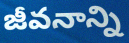
జీవనాన్ని